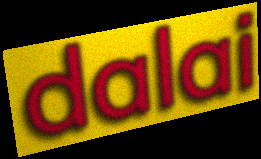
dalai